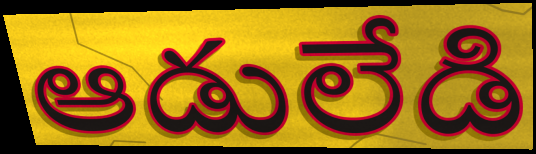
ఆడులేడి